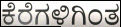
ಕೆರೆಗಳಿಗಿಂತ